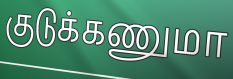
குடுக்கணுமா